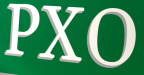
PXO